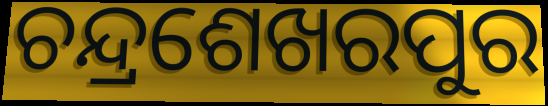
ଚନ୍ଦ୍ରଶେଖରପୁର